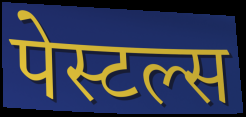
पेस्टल्स